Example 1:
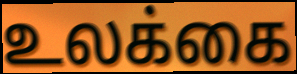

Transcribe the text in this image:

உலக்கை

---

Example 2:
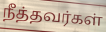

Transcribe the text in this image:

நீத்தவர்கள்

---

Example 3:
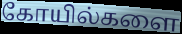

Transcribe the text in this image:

கோயில்களை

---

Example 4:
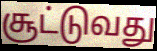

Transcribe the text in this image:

சூட்டுவது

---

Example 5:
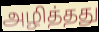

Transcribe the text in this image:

அழித்தது